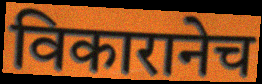
विकारानेच